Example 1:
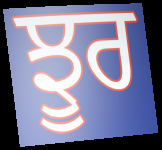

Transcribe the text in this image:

ਝੂਰ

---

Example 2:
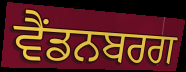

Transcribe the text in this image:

ਵੈਂਡਨਬਰਗ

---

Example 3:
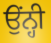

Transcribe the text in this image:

ਉਂਨ੍ਹੀ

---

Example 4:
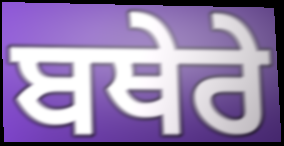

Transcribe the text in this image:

ਬਥੇਰੇ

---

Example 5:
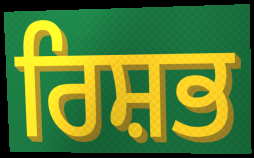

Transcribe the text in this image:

ਰਿਸ਼ਭ